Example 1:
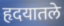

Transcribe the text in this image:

हृदयातले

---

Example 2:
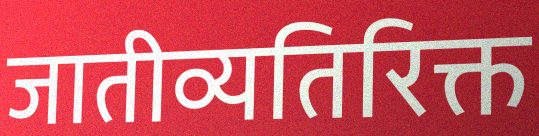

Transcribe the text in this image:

जातीव्यतिरिक्त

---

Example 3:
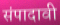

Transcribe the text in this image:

संपादावी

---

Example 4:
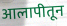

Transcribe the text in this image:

आलापीतून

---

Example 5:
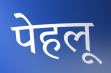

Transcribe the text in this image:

पेहलू